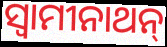
ସ୍ବାମୀନାଥନ୍